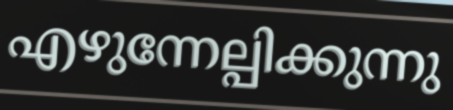
എഴുന്നേല്പിക്കുന്നു